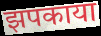
झपकाया